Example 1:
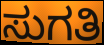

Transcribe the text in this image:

ಸುಗತಿ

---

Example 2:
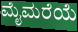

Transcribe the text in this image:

ಮೈಮರೆಯೆ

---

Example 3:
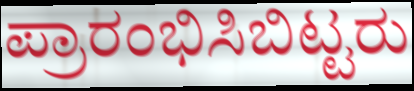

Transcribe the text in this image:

ಪ್ರಾರಂಭಿಸಿಬಿಟ್ಟರು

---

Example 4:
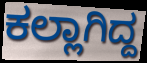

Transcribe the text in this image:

ಕಲ್ಲಾಗಿದ್ದ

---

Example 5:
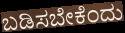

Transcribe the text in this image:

ಬಡಿಸಬೇಕೆಂದು